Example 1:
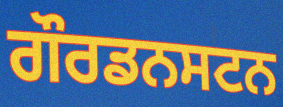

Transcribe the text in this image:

ਗੌਰਡਨਸਟਨ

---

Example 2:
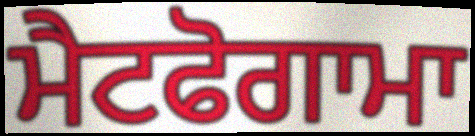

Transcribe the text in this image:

ਮੈਟਫੋਗਾਮਾ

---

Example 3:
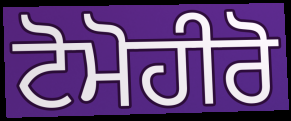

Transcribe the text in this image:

ਟੋਮੋਹੀਰੋ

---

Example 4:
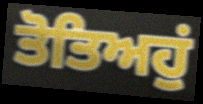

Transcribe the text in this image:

ਤੋਤਿਅਹੁਂ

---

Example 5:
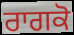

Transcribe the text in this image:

ਰਾਗਕੋ